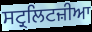
ਸਟ੍ਰਲਿਟਜ਼ੀਆ